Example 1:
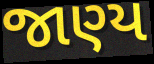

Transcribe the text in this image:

જાણ્ય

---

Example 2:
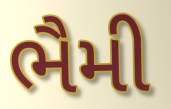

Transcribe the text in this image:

ભૈમી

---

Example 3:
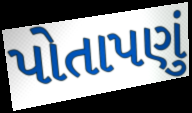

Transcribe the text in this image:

પોતાપણું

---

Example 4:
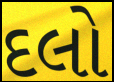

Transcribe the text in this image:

દલો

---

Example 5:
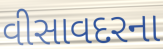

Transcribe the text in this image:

વીસાવદરના